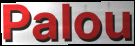
Palou